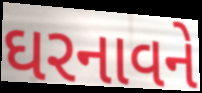
ઘરનાવને